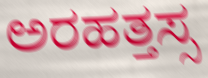
ಅರಹತ್ತಸ್ಸ